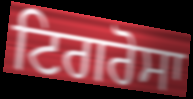
ਟਿਗਰੋਸਾ